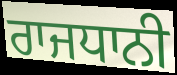
ਰਾਜਧਾਨੀ